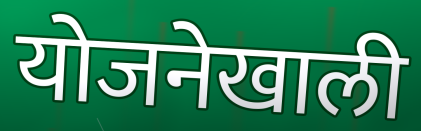
योजनेखाली